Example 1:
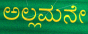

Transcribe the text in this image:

ಅಲ್ಲಮನೇ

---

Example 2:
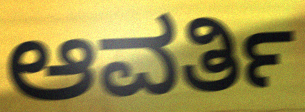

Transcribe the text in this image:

ಆವರ್ತಿ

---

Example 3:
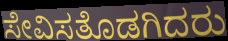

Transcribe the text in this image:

ಸೇವಿಸತೊಡಗಿದರು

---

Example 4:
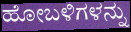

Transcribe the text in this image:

ಹೋಬಳಿಗಳನ್ನು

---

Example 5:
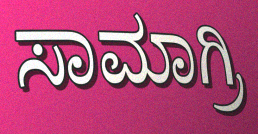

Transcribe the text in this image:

ಸಾಮಾಗ್ರಿ